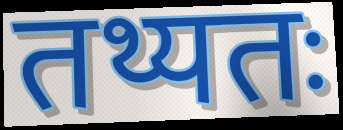
तथ्यतः